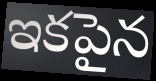
ఇకపైన